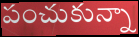
పంచుకున్నా